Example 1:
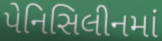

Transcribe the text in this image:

પેનિસિલીનમાં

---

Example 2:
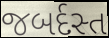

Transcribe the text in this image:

જબર્દસ્ત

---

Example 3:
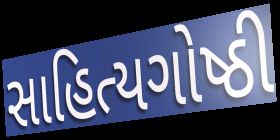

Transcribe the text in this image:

સાહિત્યગોષ્ઠી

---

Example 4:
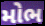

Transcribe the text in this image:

મોભ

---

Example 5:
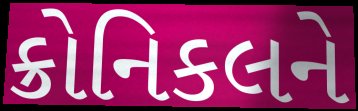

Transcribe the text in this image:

ક્રોનિકલને